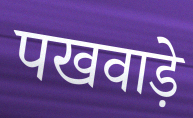
पखवाड़े